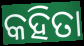
କହିତା